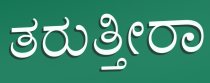
ತರುತ್ತೀರಾ